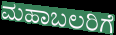
ಮಹಾಬಲರಿಗೆ